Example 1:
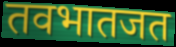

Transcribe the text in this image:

तवभातजत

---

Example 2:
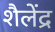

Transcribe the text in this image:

शैलेंद्र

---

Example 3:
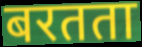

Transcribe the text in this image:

बरतता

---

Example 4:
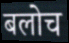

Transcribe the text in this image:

बलोच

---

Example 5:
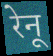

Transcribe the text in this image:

रेनू